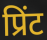
प्रिंट